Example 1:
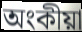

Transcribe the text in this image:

অংকীয়া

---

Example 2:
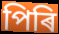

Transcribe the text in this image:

পিৰি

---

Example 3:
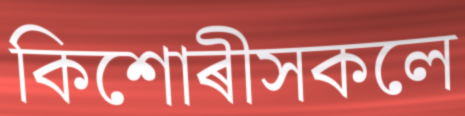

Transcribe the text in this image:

কিশোৰীসকলে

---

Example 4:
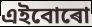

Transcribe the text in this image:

এইবোৰো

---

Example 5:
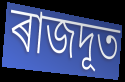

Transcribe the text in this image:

ৰাজদূত